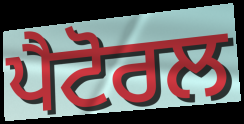
ਪੈਟੋਰਲ